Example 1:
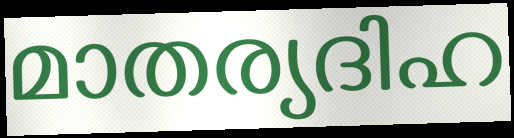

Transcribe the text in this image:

മാതര്യദിഹ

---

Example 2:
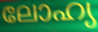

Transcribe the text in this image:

ലോഹ്യ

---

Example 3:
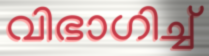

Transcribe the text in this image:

വിഭാഗിച്ച്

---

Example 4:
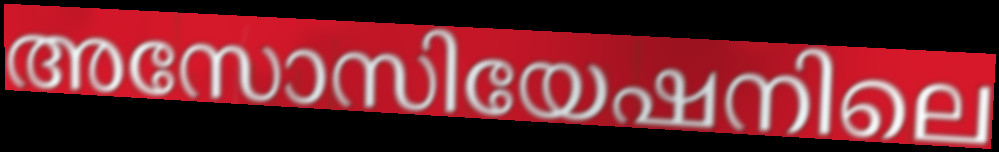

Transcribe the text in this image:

അസോസിയേഷനിലെ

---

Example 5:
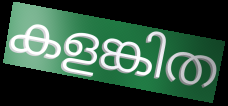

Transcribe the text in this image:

കളങ്കിത